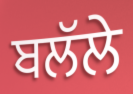
ਬਲੱਲੇ